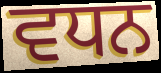
ਵਧਨ